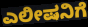
ಎಲೀಷನಿಗೆ